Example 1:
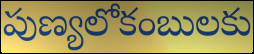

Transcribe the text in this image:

పుణ్యలోకంబులకు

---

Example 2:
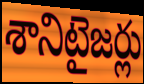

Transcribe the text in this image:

శానిటైజర్లు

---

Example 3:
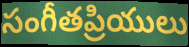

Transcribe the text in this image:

సంగీతప్రియులు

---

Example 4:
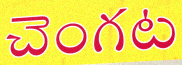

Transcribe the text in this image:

చెంగట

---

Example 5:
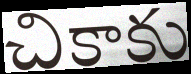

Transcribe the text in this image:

చికాకు